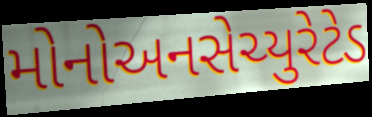
મોનોઅનસેચ્યુરેટેડ